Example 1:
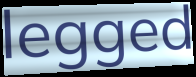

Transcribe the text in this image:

legged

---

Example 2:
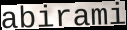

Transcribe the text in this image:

abirami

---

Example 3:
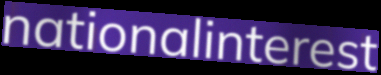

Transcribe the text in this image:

nationalinterest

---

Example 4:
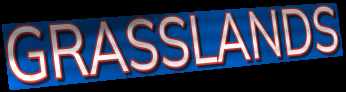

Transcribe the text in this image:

GRASSLANDS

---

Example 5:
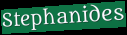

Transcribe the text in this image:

Stephanides